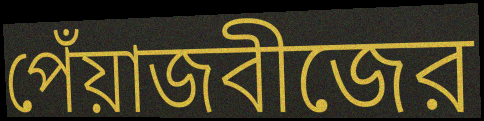
পেঁয়াজবীজের